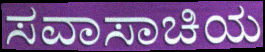
ಸವಾಸಾಚಿಯ